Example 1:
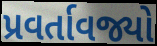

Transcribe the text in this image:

પ્રવર્તાવજ્યો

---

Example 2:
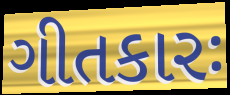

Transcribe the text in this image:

ગીતકારઃ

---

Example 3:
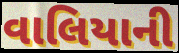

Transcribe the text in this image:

વાલિયાની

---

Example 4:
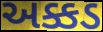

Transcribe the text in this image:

અક્કડ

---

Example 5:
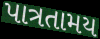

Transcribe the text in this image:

પાત્રતામય